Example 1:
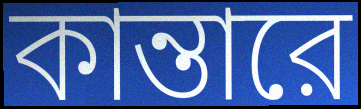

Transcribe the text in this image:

কান্তারে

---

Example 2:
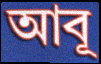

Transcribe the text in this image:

আবূ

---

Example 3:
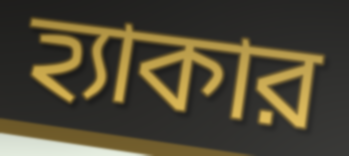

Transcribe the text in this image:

হ্যাকার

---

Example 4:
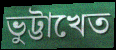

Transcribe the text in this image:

ভুট্টাখেত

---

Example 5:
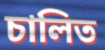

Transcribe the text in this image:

চালিত